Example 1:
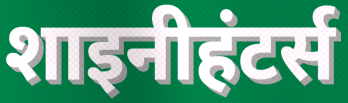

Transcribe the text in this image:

शाइनीहंटर्स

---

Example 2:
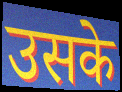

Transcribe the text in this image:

उसके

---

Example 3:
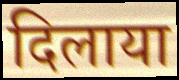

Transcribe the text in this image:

दिलाया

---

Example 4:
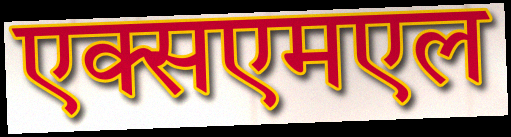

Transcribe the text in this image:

एक्सएमएल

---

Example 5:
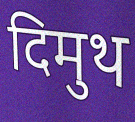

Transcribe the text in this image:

दिमुथ